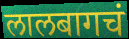
लालबागचं